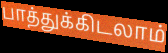
பாத்துக்கிடலாம்